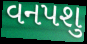
વનપશુ